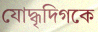
যোদ্ধৃদিগকে